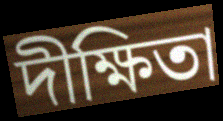
দীক্ষিতা